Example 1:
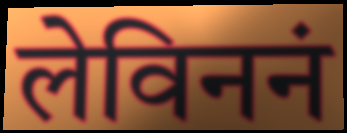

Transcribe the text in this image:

लेविननं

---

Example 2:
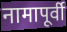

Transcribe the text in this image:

नामापूर्वी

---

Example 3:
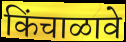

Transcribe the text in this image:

किंचाळावे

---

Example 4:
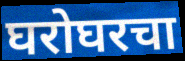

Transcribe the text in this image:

घरोघरचा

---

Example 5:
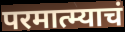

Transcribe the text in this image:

परमात्म्याचं